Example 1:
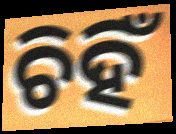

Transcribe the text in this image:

ଚିହିଁ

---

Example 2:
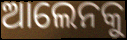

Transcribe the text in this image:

ଆଲେନକୁ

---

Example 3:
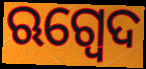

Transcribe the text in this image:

ଋଗ୍ବେଦ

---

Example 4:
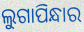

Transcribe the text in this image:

ଲୁଗାପିନ୍ଧାର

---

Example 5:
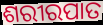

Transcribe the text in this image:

ଶରୀରପାତ